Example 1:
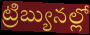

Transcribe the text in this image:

ట్రిబ్యునల్లో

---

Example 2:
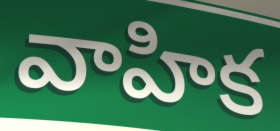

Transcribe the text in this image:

వాహిక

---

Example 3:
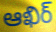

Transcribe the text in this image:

ఆఖిర్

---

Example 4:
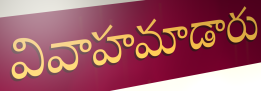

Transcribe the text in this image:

వివాహమాడారు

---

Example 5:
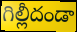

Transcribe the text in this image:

గిల్లీదండా